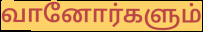
வானோர்களும்